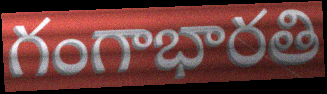
గంగాభారతి